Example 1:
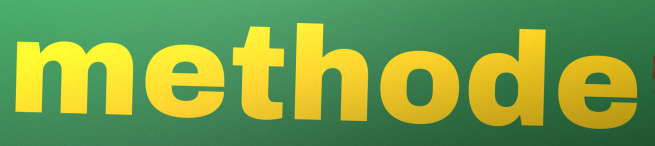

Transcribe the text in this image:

methode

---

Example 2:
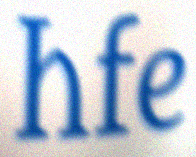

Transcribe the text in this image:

hfe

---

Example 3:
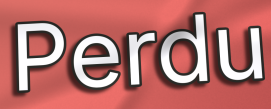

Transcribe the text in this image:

Perdu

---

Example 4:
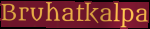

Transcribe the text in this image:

Bruhatkalpa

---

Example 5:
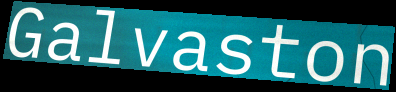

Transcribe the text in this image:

Galvaston